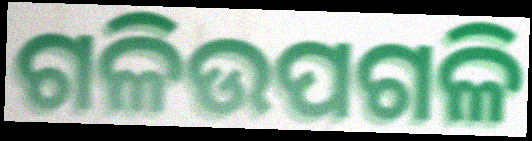
ଗଳିଉପଗଳି